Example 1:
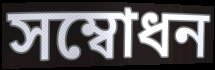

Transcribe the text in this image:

সম্বোধন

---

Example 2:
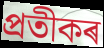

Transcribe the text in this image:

প্ৰতীকৰ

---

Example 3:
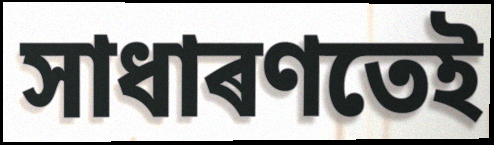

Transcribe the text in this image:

সাধাৰণতেই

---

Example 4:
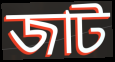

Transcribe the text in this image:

জাট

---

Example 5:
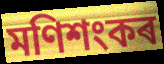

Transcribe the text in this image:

মণিশংকৰ